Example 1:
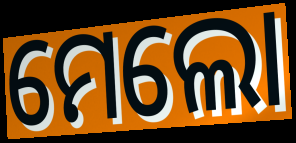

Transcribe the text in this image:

ମେଲୋ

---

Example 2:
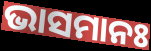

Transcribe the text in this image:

ଭାସମାନଃ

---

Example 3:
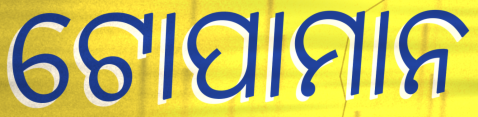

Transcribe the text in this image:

ଟୋପାମାନ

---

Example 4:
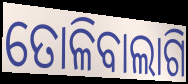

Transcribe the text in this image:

ତୋଳିବାଲାଗି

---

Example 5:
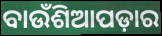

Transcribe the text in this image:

ବାଉଁଶିଆପଡ଼ାର